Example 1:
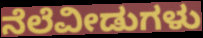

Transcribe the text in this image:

ನೆಲೆವೀಡುಗಳು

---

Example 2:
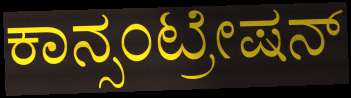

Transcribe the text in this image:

ಕಾನ್ಸಂಟ್ರೇಷನ್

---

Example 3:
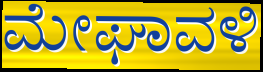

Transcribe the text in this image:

ಮೇಘಾವಳಿ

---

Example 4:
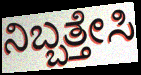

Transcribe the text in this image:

ನಿಬ್ಬತ್ತೇಸಿ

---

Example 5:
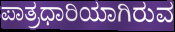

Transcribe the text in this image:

ಪಾತ್ರಧಾರಿಯಾಗಿರುವ